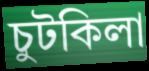
চুটকিলা